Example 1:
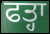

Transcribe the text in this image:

ਫਤ੍ਹਾ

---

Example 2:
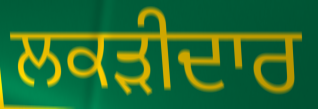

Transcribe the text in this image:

ਲਕੜੀਦਾਰ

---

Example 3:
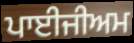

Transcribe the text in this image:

ਪਾਈਜੀਅਮ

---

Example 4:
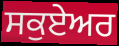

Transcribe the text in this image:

ਸਕੁਏਅਰ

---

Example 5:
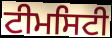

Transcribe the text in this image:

ਟੀਮਸਿਟੀ